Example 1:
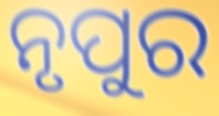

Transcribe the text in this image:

ନୃପୁର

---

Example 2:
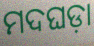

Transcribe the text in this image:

ମଦଘଡ଼ା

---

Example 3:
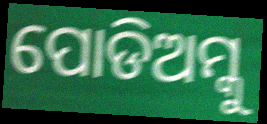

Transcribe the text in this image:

ପୋଡିଅମ୍କୁ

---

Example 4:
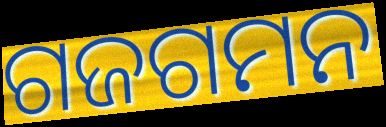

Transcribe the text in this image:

ଗଜଗମନ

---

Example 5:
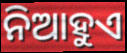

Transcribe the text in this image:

ନିଆହୁଏ